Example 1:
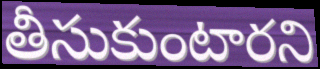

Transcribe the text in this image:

తీసుకుంటారని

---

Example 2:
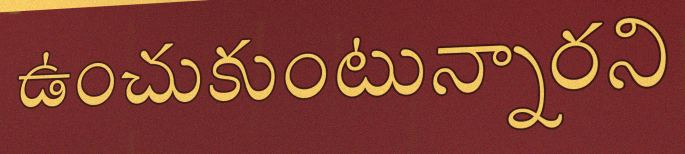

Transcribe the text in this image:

ఉంచుకుంటున్నారని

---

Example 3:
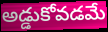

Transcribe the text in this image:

అడ్డుకోవడమే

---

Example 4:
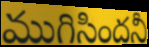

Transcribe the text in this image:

ముగిసిందనీ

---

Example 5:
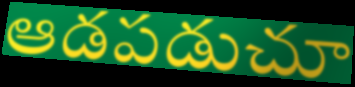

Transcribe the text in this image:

ఆడపడుచూ